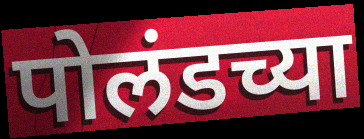
पोलंडच्या